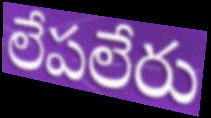
లేపలేరు